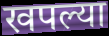
खपल्या